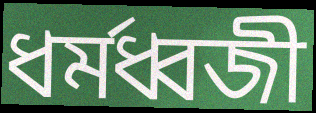
ধর্মধ্বজী